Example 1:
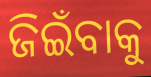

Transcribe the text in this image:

ଜିଇଁବାକୁ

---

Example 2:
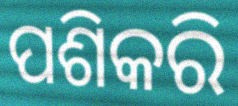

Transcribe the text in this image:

ପଶିକରି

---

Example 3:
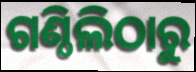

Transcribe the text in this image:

ଗଣ୍ଠିଲିଠାରୁ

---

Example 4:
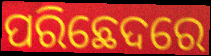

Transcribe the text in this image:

ପରିଛେଦରେ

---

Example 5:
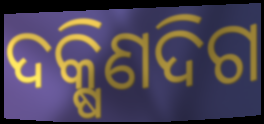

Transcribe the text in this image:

ଦକ୍ଷିଣଦିଗ